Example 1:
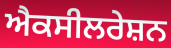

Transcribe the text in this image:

ਐਕਸੀਲਰੇਸ਼ਨ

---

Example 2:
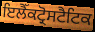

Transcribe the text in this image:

ਇਲੈੱਕਟ੍ਰੋਸਟੈਟਿਕ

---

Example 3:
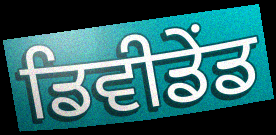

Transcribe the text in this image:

ਡਿਵੀਡੇਂਡ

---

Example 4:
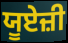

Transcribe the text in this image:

ਯੂਏਜ਼ੀ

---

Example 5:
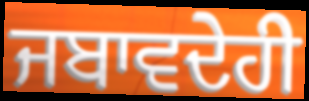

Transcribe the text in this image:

ਜਬਾਵਦੇਹੀ